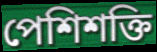
পেশিশক্তি